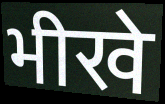
भीखे